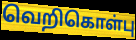
வெறிகொள்பு